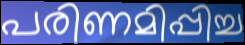
പരിണമിപ്പിച്ച